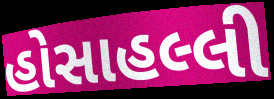
હોસાહલ્લી